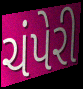
ચંપેરી